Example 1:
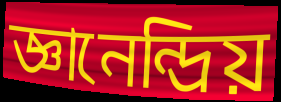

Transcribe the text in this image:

জ্ঞানেন্দ্রিয়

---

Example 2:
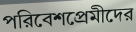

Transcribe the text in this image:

পরিবেশপ্রেমীদের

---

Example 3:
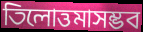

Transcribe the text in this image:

তিলোত্তমাসম্ভব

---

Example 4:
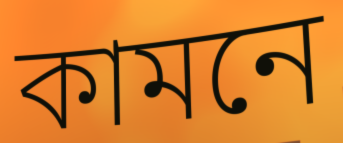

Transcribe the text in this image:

কামনে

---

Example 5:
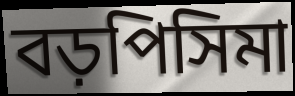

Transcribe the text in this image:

বড়পিসিমা